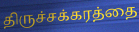
திருச்சக்கரத்தை